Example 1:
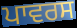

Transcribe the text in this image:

ਪਾਵਰਸ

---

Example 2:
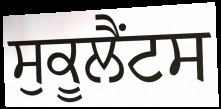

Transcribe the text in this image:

ਸੁਕੂਲੈਂਟਸ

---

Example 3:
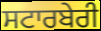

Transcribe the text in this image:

ਸਟਾਰਬੇਰੀ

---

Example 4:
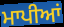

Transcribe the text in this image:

ਮਾਪੀਆਂ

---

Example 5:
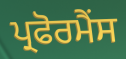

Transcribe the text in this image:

ਪ੍ਰਫੋਰਮੈਂਸ